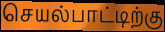
செயல்பாட்டிற்கு